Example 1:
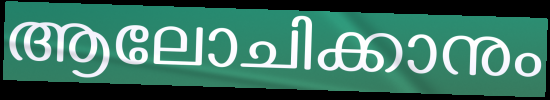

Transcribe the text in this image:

ആലോചിക്കാനും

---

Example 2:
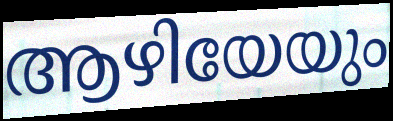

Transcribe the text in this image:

ആഴിയേയും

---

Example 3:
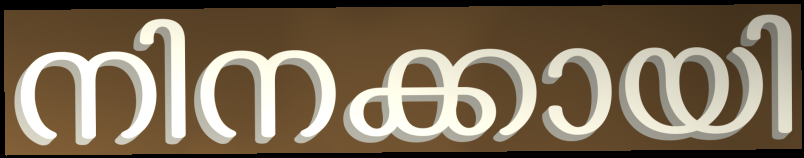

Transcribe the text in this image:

നിനക്കായി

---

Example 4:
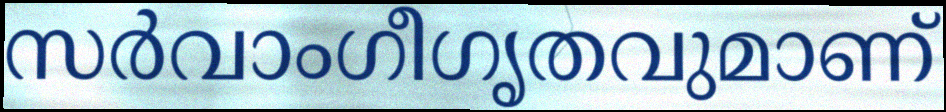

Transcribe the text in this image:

സർവാംഗീഗൃതവുമാണ്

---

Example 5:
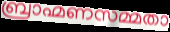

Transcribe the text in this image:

ബ്രാഹ്മണസമ്മതാ